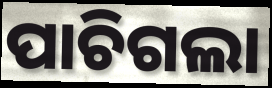
ପାଚିଗଲା